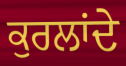
ਕੁਰਲਾਂਦੇ